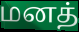
மனத்